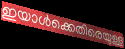
ഇയാൾക്കെതിരെയുള്ള